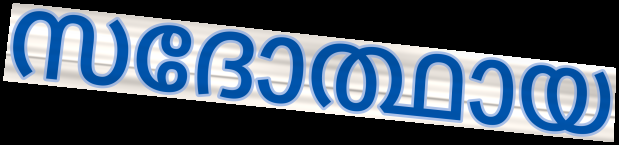
സദോത്ഥായ